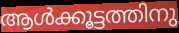
ആൾക്കൂട്ടത്തിനു